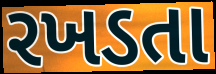
રખડતા